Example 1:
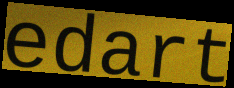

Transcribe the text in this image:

edart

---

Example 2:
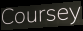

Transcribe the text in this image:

Coursey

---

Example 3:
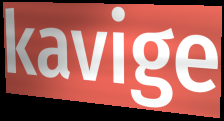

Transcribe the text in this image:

kavige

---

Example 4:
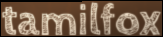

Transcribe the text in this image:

tamilfox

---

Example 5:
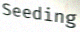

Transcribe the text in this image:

Seeding